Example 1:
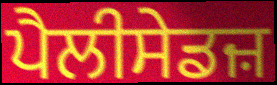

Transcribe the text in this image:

ਪੈਲੀਸੇਡਜ਼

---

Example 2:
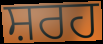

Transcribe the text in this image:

ਸ਼ਰਹ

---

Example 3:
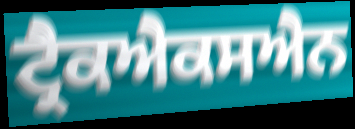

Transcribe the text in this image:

ਟ੍ਰੈਕਐਕਸਐਨ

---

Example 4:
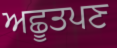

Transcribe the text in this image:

ਅਛੂਤਪਣ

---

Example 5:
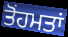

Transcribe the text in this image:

ਤੋਂਹਮਤਾਂ